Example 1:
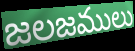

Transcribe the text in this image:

జలజములు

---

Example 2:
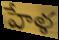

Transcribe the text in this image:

హేళ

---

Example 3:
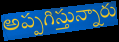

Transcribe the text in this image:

అప్పగిస్తున్నారు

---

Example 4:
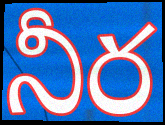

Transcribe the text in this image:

నీర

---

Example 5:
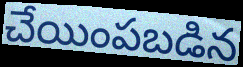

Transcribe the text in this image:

చేయింపబడిన